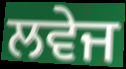
ਲਵੇਜ